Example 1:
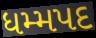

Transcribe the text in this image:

ધમ્મપદ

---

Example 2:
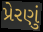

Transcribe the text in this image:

પ્રેરણું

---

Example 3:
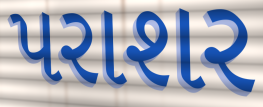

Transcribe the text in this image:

પરાશર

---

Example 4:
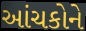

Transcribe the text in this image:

આંચકોને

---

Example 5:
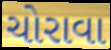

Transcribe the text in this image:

ચોરાવા